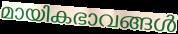
മായികഭാവങ്ങൾ